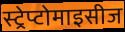
स्ट्रेप्टोमाइसीज